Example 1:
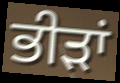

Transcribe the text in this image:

ਭੀੜਾਂ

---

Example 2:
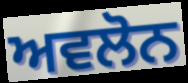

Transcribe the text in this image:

ਅਵਲੋਨ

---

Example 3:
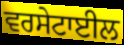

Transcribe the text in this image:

ਵਰਸੇਟਾਈਲ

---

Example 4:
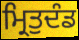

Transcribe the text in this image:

ਮ੍ਰਿਤੁਦੰਡ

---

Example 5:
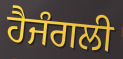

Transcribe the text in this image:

ਹੈਜੰਗਲੀ